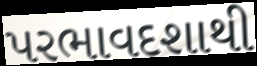
પરભાવદશાથી